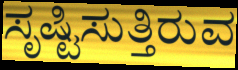
ಸೃಷ್ಟಿಸುತ್ತಿರುವ